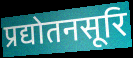
प्रद्योतनसूरि